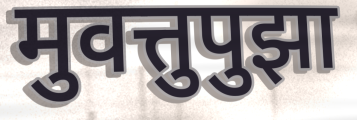
मुवत्तुपुझा